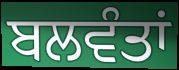
ਬਲਵੰਤਾਂ